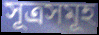
সূত্রসমূহ